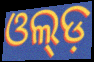
ଓଲ୍ଡ଼